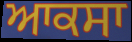
ਆਕਸਾ